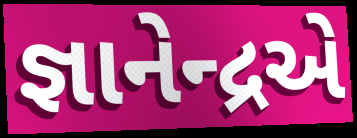
જ્ઞાનેન્દ્રએ